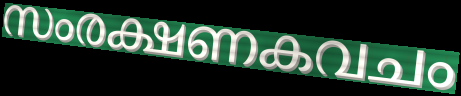
സംരക്ഷണകവചം